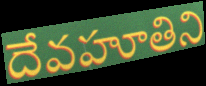
దేవహూతిని